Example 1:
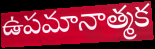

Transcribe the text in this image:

ఉపమానాత్మక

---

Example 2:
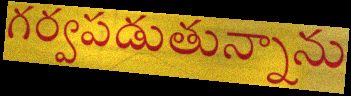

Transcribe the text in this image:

గర్వపడుతున్నాను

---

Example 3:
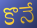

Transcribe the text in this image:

కొనే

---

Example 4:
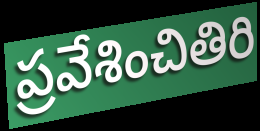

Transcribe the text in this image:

ప్రవేశించితిరి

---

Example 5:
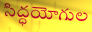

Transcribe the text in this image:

సిద్ధయోగుల